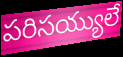
పరిసయ్యులే